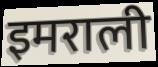
इमराली